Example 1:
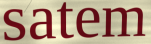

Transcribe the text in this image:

satem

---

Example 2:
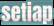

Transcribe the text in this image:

setiap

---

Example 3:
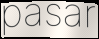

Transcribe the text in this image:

pasar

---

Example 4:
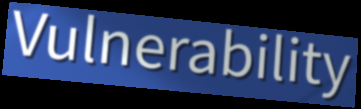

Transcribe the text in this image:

Vulnerability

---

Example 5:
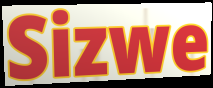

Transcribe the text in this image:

Sizwe